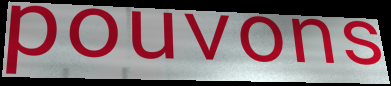
pouvons